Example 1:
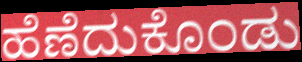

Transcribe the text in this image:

ಹೆಣೆದುಕೊಂಡು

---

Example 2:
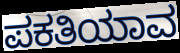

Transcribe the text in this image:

ಪಕತಿಯಾವ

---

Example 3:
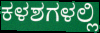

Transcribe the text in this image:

ಕಳಶಗಳಲ್ಲಿ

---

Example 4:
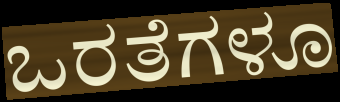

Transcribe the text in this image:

ಒರತೆಗಳೂ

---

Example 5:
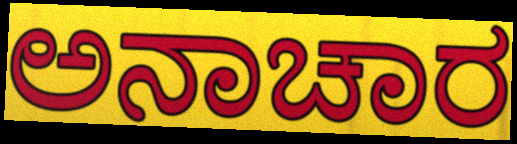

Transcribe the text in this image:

ಅನಾಚಾರ